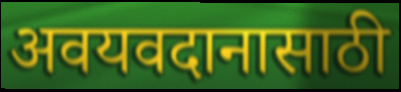
अवयवदानासाठी